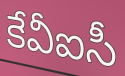
కేవీఐసీ